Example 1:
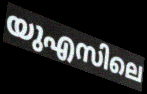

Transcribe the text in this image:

യുഎസിലെ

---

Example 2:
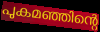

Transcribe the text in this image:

പുകമഞ്ഞിന്റെ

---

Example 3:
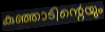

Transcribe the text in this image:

കുഞ്ഞാടിന്റെയും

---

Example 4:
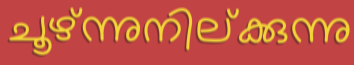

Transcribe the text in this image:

ചൂഴ്ന്നുനില്ക്കുന്നു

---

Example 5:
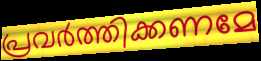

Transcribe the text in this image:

പ്രവർത്തിക്കണമേ